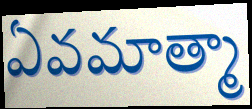
ఏవమాత్మా